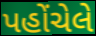
પહોંચેલે